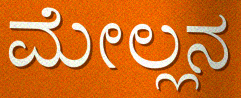
ಮೇಲ್ಲನ